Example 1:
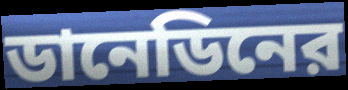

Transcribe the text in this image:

ডানেডিনের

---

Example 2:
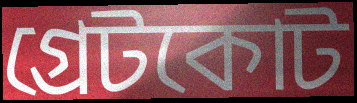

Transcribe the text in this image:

গ্রেটকোট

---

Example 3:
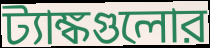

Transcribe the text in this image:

ট্যাঙ্কগুলোর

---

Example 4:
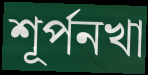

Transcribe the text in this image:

শূর্পনখা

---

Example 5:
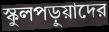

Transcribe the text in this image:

স্কুলপড়ুয়াদের